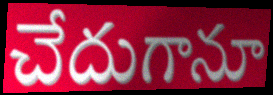
చేదుగానూ